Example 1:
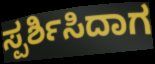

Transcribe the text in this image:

ಸ್ಪರ್ಶಿಸಿದಾಗ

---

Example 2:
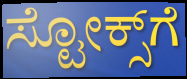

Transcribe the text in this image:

ಸ್ಟೋಕ್ಸ್‌ಗೆ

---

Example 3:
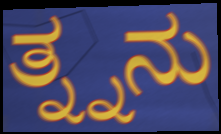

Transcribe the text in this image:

ತ್ನ್ನನು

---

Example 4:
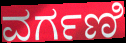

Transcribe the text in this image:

ವರ್ಗಣಿ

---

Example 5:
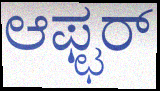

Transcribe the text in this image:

ಆಫ್ಟರ್